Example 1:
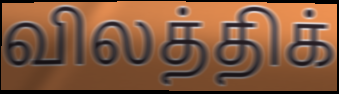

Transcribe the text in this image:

விலத்திக்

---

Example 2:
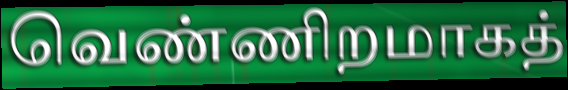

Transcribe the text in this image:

வெண்ணிறமாகத்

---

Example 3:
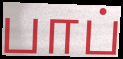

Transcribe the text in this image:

பாப்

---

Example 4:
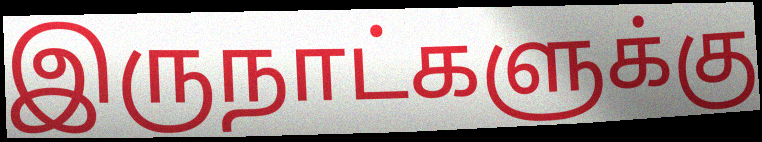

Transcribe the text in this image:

இருநாட்களுக்கு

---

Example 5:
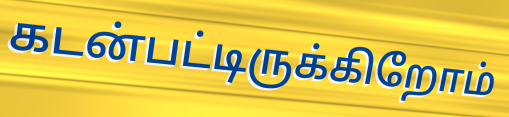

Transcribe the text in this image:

கடன்பட்டிருக்கிறோம்